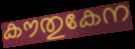
കൗതുകേന